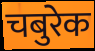
चबुरेक